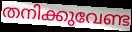
തനിക്കുവേണ്ട